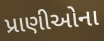
પ્રાણીઓના